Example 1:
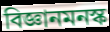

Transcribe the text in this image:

বিজ্ঞানমনস্ক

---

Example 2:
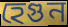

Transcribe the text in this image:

হেগুন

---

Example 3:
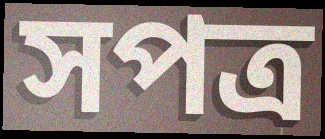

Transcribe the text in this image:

সপত্র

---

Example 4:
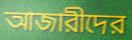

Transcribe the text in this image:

আজারীদের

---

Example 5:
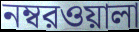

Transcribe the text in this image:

নম্বরওয়ালা